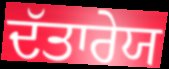
ਦੱਤਾਰੇਯ